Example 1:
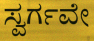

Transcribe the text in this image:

ಸ್ವರ್ಗವೇ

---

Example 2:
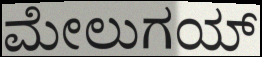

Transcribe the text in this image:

ಮೇಲುಗಯ್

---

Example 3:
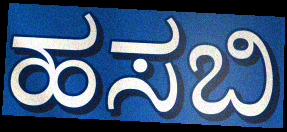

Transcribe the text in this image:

ಹಸಬಿ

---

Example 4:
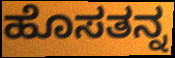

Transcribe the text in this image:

ಹೊಸತನ್ನ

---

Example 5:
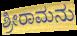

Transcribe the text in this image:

ಶ್ರೀರಾಮನು